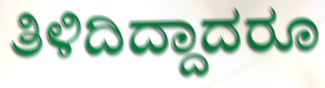
ತಿಳಿದಿದ್ದಾದರೂ